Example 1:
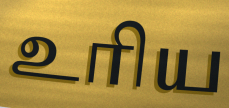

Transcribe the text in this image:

உரிய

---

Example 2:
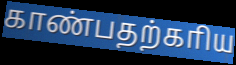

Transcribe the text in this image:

காண்பதற்கரிய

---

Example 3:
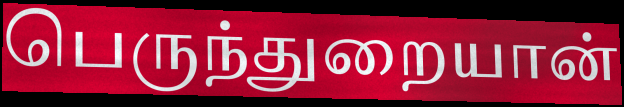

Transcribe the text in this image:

பெருந்துறையான்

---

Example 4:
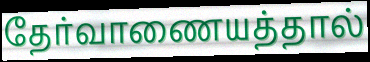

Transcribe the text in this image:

தேர்வாணையத்தால்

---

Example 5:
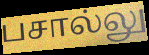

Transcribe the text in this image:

பசால்லு